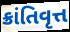
ક્રાંતિવૃત્ત